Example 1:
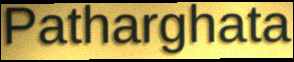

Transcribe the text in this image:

Patharghata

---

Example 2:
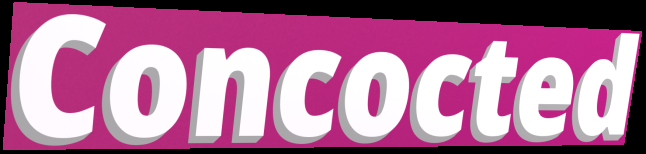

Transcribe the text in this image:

Concocted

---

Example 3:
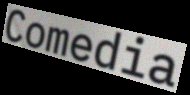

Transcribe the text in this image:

Comedia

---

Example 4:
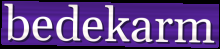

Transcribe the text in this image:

bedekarm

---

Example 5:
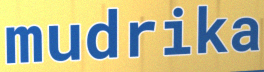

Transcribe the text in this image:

mudrika